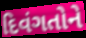
દિવંગતોને